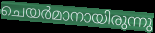
ചെയർമാനായിരുന്നു